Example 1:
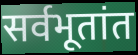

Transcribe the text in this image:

सर्वभूतांत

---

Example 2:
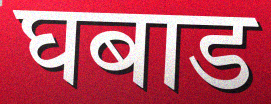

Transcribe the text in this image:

घबाड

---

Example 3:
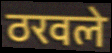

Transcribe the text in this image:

ठरवले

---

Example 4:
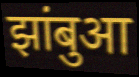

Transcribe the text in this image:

झांबुआ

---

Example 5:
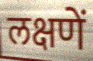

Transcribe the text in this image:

लक्षणें